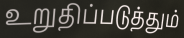
உறுதிப்படுத்தும்